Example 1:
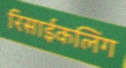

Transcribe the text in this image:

रिसाईकलिंग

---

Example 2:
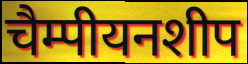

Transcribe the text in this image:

चैम्पीयनशीप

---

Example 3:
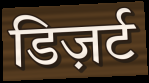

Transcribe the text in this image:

डिज़र्ट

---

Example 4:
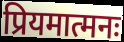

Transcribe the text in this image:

प्रियमात्मनः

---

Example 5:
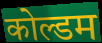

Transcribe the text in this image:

कोल्डम